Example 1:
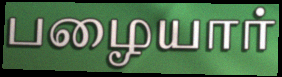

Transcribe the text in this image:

பழையார்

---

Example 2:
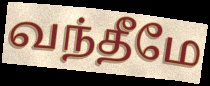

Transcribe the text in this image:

வந்தீமே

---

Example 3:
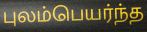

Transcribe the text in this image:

புலம்பெயர்ந்த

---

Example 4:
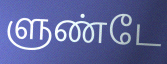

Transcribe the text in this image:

ளுண்டே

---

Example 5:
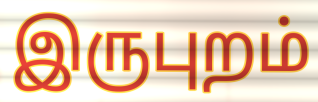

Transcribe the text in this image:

இருபுறம்